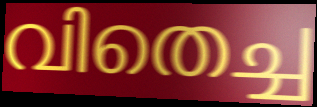
വിതെച്ച